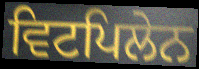
ਵਿਟਪਿਲੇਨ